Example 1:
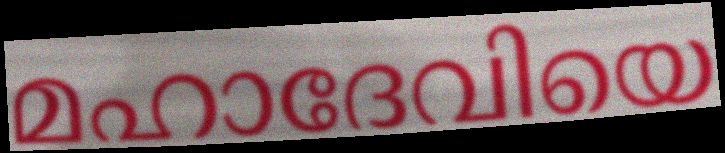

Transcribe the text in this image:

മഹാദേവിയെ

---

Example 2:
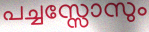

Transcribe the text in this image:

പച്ചസ്സോസും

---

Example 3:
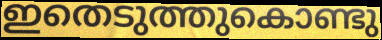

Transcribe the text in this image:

ഇതെടുത്തുകൊണ്ടു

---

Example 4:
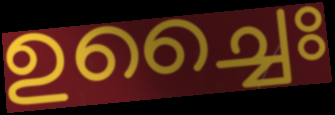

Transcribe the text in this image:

ഉച്ചൈഃ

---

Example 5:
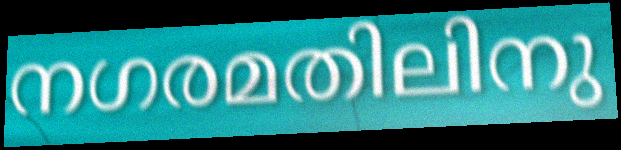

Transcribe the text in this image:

നഗരമതിലിനു